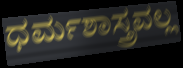
ಧರ್ಮಶಾಸ್ತ್ರವಲ್ಲ